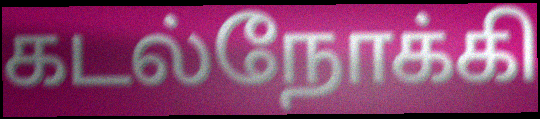
கடல்நோக்கி